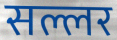
सल्लर